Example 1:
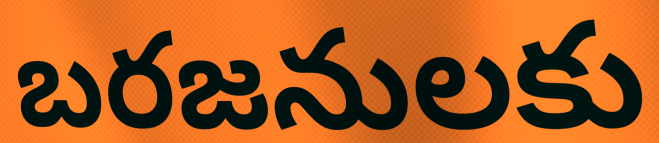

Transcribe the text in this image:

బరజనులకు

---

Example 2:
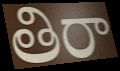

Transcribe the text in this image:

తిరా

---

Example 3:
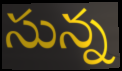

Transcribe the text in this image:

సున్న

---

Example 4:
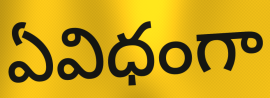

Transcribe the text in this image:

ఏవిధంగా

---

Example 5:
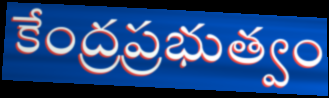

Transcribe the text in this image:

కేంద్రప్రభుత్వం